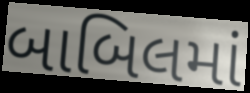
બાબિલમાં